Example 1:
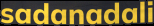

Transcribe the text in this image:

sadanadali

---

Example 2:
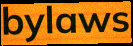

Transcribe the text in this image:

bylaws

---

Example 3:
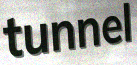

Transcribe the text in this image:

tunnel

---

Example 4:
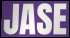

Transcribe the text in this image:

JASE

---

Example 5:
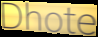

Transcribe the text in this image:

Dhote